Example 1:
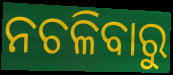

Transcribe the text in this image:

ନଚଳିବାରୁ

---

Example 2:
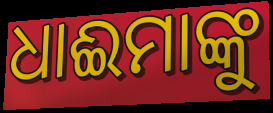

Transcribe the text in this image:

ଧାଈମାଙ୍କୁ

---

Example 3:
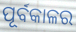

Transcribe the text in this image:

ପୂର୍ବକାଳର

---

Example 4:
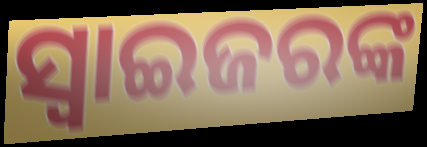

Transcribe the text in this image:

ସ୍ଵାଇଜରଙ୍କ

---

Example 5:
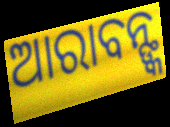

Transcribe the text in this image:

ଆରାବନ୍ଙ୍କ